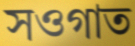
সওগাত